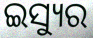
ଇସ୍ୟୁର